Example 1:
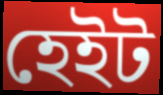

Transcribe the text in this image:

হেইট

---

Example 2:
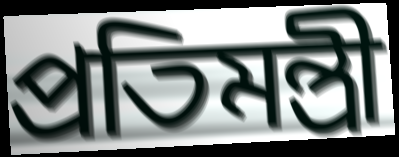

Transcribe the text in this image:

প্রতিমন্ত্রী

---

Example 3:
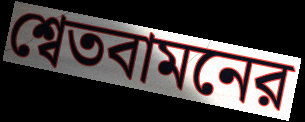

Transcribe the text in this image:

শ্বেতবামনের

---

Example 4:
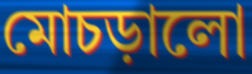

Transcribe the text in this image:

মোচড়ালো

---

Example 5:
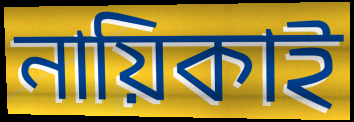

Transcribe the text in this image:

নায়িকাই